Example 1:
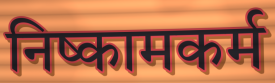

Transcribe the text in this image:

निष्कामकर्म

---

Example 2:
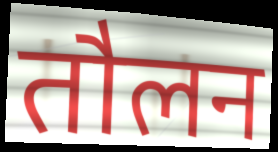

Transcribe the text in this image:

तौलन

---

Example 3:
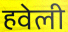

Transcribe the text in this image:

हवेली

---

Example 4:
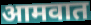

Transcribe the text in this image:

आमवात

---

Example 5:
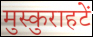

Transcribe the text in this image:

मुस्कुराहटें